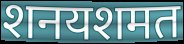
शनयशमत